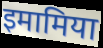
इमामिया